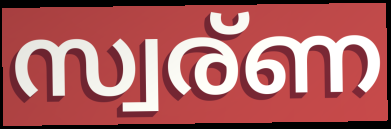
സ്വര്ണ